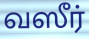
வஸீர்